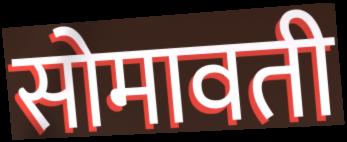
सोमावती